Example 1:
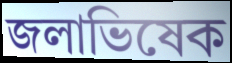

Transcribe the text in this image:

জলাভিষেক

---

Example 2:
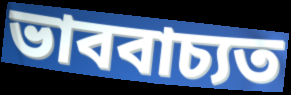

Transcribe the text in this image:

ভাববাচ্যত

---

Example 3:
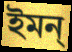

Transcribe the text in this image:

ইমন্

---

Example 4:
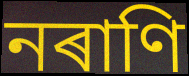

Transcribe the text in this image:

নৰাণি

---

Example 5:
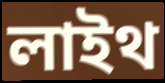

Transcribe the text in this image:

লাইথ